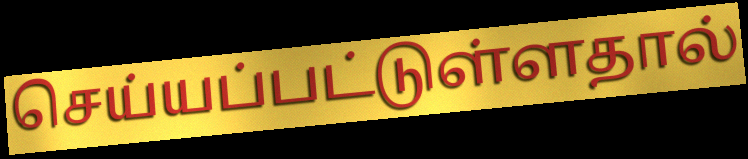
செய்யப்பட்டுள்ளதால்